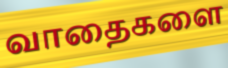
வாதைகளை